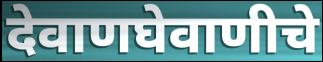
देवाणघेवाणीचे